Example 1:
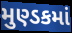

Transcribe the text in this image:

મુણ્ડકમાં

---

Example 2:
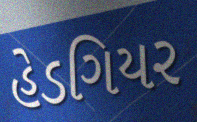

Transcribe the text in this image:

હેડગિયર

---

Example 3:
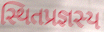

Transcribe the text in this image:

સ્થિતપ્રજ્ઞસ્ય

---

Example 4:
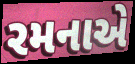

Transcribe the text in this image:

રમનાએ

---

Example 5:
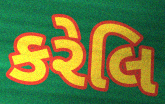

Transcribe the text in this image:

કરેલિ